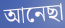
আনেছা